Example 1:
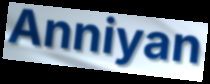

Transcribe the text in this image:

Anniyan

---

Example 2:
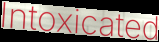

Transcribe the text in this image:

Intoxicated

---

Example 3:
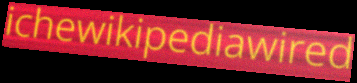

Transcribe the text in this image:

ichewikipediawired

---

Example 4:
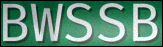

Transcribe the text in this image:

BWSSB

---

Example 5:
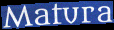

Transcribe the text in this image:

Matura